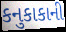
કનુકાકાની